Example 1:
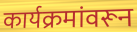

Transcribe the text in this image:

कार्यक्रमांवरून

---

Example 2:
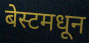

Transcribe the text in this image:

बेस्टमधून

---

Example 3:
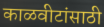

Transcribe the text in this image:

काळवीटांसाठी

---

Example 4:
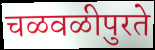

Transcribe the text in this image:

चळवळीपुरते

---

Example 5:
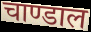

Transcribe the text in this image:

चाण्डाल